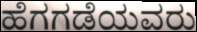
ಹೆಗಗಡೆಯವರು